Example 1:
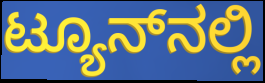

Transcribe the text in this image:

ಟ್ಯೂನ್‌ನಲ್ಲಿ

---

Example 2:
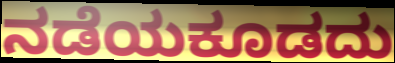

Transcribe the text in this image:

ನಡೆಯಕೂಡದು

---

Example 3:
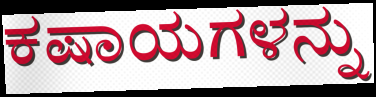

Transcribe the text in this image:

ಕಷಾಯಗಳನ್ನು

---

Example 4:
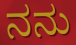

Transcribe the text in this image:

ನನು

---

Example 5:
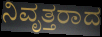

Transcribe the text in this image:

ನಿವೃತ್ತರಾದ